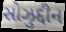
સોઝુદ્દીન